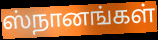
ஸ்நானங்கள்